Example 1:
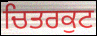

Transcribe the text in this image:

ਚਿਤਰਕੁਟ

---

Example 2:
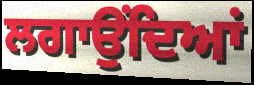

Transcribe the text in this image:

ਲਗਾਉਂਦਿਆਂ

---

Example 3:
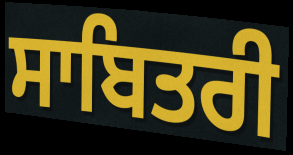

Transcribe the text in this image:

ਸਾਬਿਤਰੀ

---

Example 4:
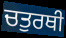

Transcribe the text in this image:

ਚਤੁਰਥੀ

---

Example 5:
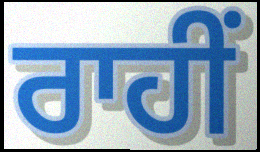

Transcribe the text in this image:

ਰਾਹੀਂ